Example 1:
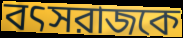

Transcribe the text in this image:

বৎসরাজকে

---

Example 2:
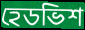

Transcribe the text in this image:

হেডভিশ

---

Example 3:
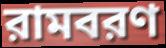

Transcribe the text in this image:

রামবরণ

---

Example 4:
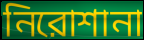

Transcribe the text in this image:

নিরোশানা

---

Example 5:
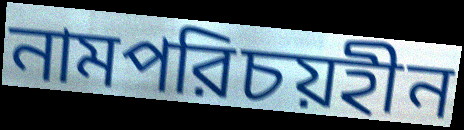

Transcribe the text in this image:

নামপরিচয়হীন